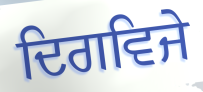
ਦਿਗਵਿਜੇ